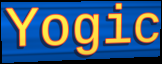
Yogic